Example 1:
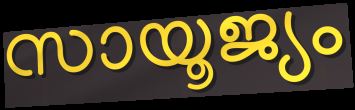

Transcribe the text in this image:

സായൂജ്യം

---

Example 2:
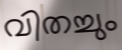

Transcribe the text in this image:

വിതച്ചും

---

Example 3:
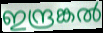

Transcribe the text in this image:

ഇന്ദ്രങ്കൽ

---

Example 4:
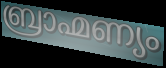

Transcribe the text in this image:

ബ്രാഹ്മണ്യം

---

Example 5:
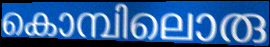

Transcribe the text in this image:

കൊമ്പിലൊരു